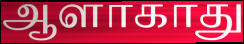
ஆளாகாது